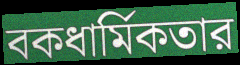
বকধার্মিকতার